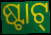
ଷ୍ଟାଟ୍